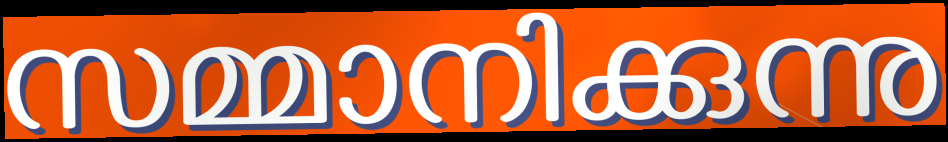
സമ്മാനിക്കുന്നു